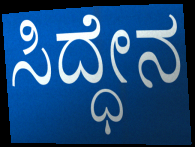
ಸಿದ್ಧೇನ